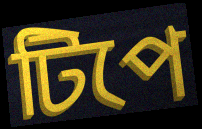
টিপে